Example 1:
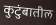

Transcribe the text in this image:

कुटुंबातील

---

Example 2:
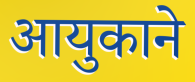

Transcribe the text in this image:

आयुकाने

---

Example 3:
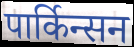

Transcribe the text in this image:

पार्किन्सन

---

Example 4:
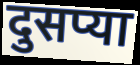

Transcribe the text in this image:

दुसप्या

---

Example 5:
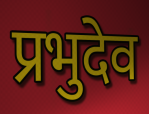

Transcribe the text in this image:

प्रभुदेव